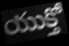
యుక్తో